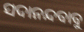
ସଦାନନ୍ଦବାବୁ